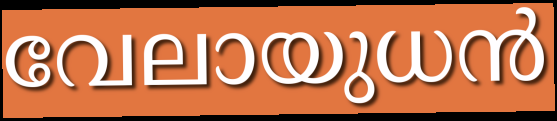
വേലായുധൻ